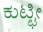
ಕುಟ್ಟೀ